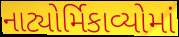
નાટ્યોર્મિકાવ્યોમાં